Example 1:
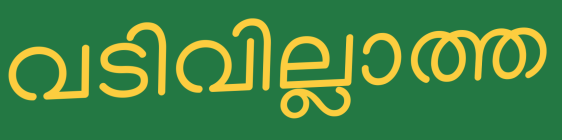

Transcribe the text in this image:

വടിവില്ലാത്ത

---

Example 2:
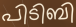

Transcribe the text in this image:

പിടിബി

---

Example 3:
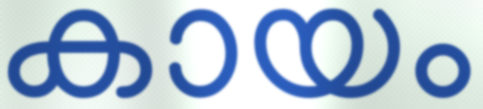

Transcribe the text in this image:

കായം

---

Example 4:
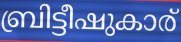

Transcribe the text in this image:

ബ്രിട്ടീഷുകാര്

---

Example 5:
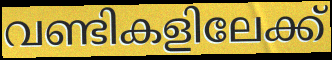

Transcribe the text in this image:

വണ്ടികളിലേക്ക്